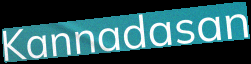
Kannadasan